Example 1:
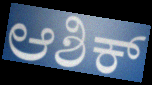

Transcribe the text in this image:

ಆಶಿಕ್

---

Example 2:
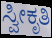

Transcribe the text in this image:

ಸ್ವೀಕೃತಿ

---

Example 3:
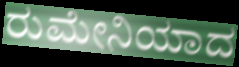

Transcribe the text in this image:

ರುಮೇನಿಯಾದ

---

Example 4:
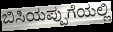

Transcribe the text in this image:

ಬಿಸಿಯಪ್ಪುಗೆಯಲ್ಲಿ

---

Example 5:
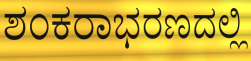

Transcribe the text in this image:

ಶಂಕರಾಭರಣದಲ್ಲಿ